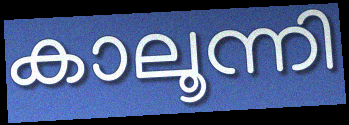
കാലൂന്നി